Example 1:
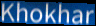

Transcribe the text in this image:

Khokhar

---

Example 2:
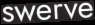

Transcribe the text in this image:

swerve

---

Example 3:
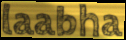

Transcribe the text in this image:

laabha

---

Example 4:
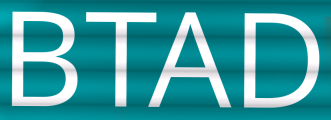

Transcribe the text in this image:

BTAD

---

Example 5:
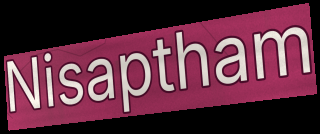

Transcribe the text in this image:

Nisaptham